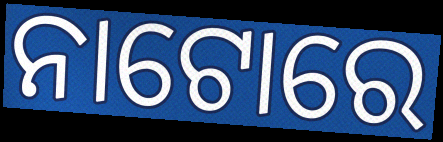
ନାଟୋରେ